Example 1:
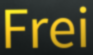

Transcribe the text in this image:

Frei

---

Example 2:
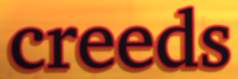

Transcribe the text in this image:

creeds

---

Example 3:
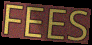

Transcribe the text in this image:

FEES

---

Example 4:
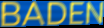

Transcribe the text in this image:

BADEN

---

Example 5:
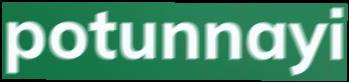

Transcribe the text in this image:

potunnayi